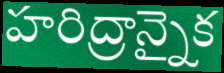
హరిద్రాన్నైక